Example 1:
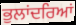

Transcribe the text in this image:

ਭੁਲਾਂਦਰਿਆਂ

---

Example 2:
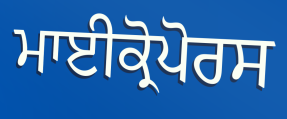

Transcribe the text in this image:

ਮਾਈਕ੍ਰੋਪੋਰਸ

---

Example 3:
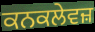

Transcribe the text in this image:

ਕਨਕਲੇਵਜ਼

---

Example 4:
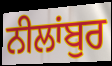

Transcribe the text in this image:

ਨੀਲਾਂਬੁਰ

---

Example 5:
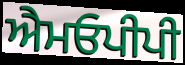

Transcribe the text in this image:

ਐਮਓਪੀਪੀ